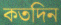
কতদিন